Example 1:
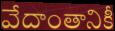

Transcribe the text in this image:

వేదాంతానికీ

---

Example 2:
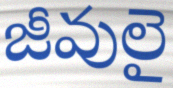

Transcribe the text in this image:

జీవులై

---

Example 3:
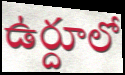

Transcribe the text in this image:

ఉర్దూలో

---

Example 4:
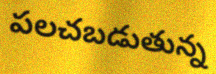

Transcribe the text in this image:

పలచబడుతున్న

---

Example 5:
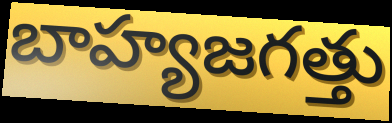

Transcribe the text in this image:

బాహ్యజగత్తు